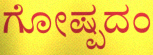
ಗೋಷ್ಪದಂ